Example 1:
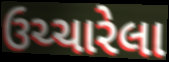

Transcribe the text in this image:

ઉચ્ચારેલા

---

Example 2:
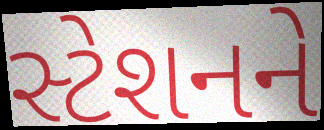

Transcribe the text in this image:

સ્ટેશનને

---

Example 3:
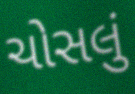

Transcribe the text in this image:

ચોસલું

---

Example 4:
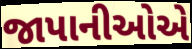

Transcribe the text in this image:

જાપાનીઓએ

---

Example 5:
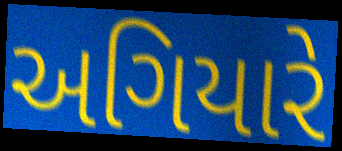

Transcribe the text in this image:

અગિયારે